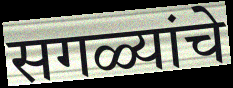
सगळ्यांचे